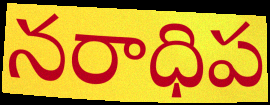
నరాధిప